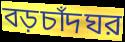
বড়চাঁদঘর